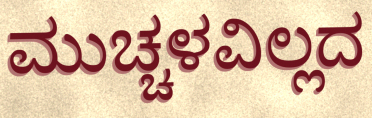
ಮುಚ್ಚಳವಿಲ್ಲದ